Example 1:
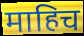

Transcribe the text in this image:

माहिच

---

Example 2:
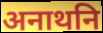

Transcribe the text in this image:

अनाथनि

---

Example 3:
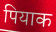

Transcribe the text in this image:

पियाक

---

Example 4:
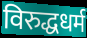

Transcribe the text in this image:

विरुद्धधर्म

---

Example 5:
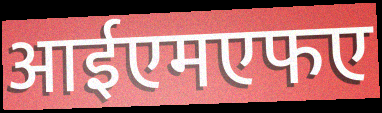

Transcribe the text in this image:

आईएमएफए